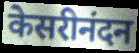
केसरीनंदन